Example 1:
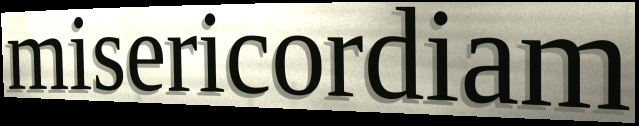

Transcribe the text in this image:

misericordiam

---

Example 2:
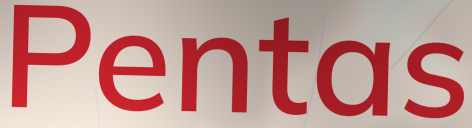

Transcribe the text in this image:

Pentas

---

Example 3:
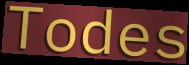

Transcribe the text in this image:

Todes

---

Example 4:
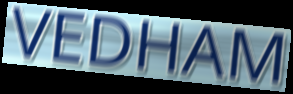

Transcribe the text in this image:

VEDHAM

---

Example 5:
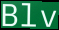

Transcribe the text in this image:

Blv